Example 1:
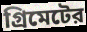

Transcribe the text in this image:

গ্রিমেটের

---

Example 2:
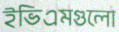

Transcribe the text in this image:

ইভিএমগুলো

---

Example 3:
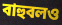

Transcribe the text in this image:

বাহুবলও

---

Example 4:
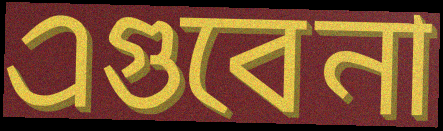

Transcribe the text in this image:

এগুবেনা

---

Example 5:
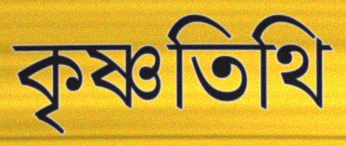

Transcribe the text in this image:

কৃষ্ণতিথি